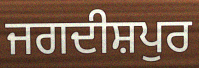
ਜਗਦੀਸ਼ਪੁਰ